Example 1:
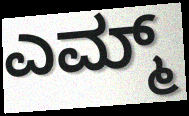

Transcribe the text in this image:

ಎಮ್ಮ್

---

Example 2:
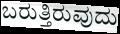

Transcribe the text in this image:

ಬರುತ್ತಿರುವುದು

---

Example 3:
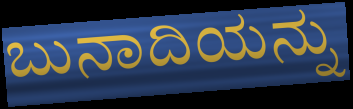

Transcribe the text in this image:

ಬುನಾದಿಯನ್ನು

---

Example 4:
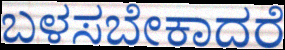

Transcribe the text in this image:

ಬಳಸಬೇಕಾದರೆ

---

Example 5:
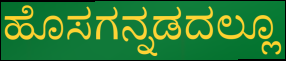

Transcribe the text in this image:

ಹೊಸಗನ್ನಡದಲ್ಲೂ